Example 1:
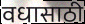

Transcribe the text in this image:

वधासाठी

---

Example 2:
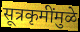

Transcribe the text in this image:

सूत्रकृमींमुळे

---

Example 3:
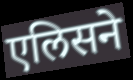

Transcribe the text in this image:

एलिसने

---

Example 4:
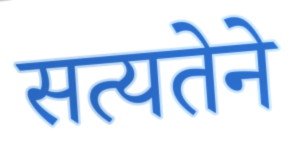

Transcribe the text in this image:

सत्यतेने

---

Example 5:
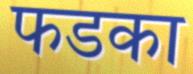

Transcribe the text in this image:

फडका